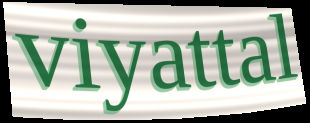
viyattal